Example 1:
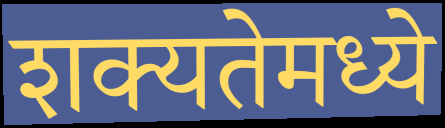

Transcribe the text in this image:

शक्यतेमध्ये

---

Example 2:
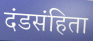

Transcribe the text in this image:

दंडसंहिता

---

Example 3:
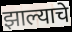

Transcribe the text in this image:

झाल्याचे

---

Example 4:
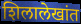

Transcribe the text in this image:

शिलालेखांत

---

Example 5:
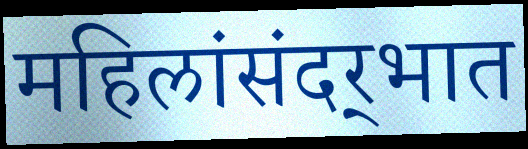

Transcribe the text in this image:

महिलांसंदर्भात